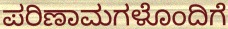
ಪರಿಣಾಮಗಳೊಂದಿಗೆ